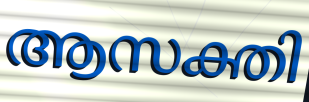
ആസക്തി